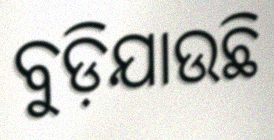
ବୁଡ଼ିଯାଉଛି